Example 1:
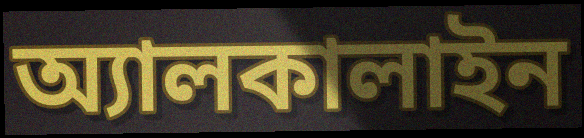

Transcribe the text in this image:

অ্যালকালাইন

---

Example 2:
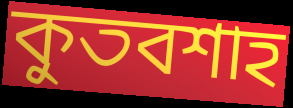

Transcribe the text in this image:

কুতবশাহ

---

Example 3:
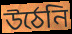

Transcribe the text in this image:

উঠেনি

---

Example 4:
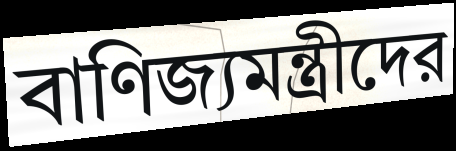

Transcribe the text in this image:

বাণিজ্যমন্ত্রীদের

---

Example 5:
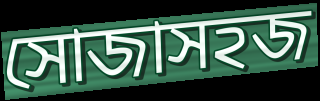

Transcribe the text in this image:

সোজাসহজ